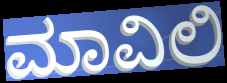
ಮಾವಿಲಿ